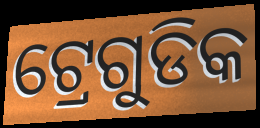
ଟ୍ରେଗୁଡିକ